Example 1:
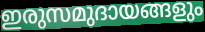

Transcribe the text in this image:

ഇരുസമുദായങ്ങളും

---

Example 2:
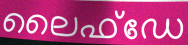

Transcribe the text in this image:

ലൈഫ്ഡേ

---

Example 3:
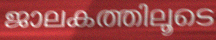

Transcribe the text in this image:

ജാലകത്തിലൂടെ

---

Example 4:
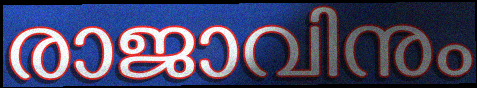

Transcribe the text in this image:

രാജാവിനും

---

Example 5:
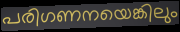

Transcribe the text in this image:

പരിഗണനയെങ്കിലും